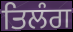
ਤਿਲੰਗ